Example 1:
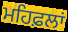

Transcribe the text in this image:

ਮਹਿਫ਼ਲਾਂ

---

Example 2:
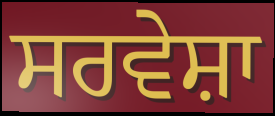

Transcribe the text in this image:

ਸਰਵੇਸ਼ਾ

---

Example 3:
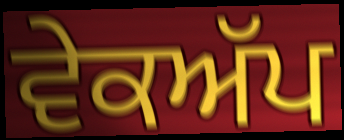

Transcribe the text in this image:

ਵੇਕਅੱਪ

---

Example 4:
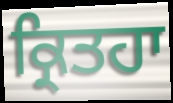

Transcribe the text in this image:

ਕ੍ਰਿਤਹਾ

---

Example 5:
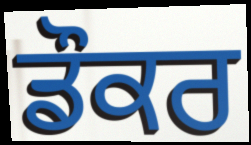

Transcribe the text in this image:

ਡੌਕਰ